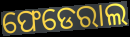
ଫେଡେରାଲ